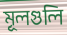
মূলগুলি